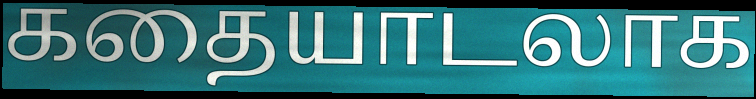
கதையாடலாக